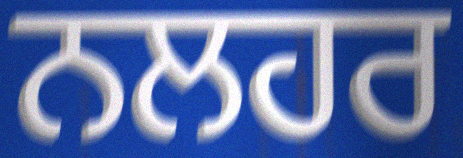
ਨਲਹਰ